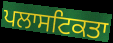
ਪਲਾਸਟਿਕਤਾ